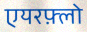
एयरफ़्लो